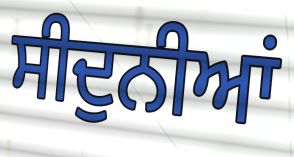
ਸੀਦੁਨੀਆਂ